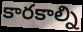
కారకాల్ని